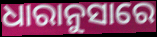
ଧାରାନୁସାରେ